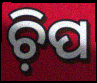
ଚ଼ିପ